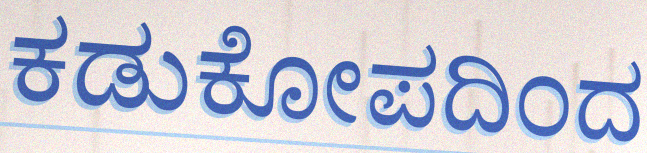
ಕಡುಕೋಪದಿಂದ